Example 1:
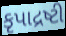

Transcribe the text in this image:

કૃપાદ્રષ્ટી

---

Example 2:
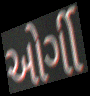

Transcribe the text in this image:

ઓર્ગી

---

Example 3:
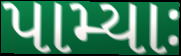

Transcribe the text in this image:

પામ્યાઃ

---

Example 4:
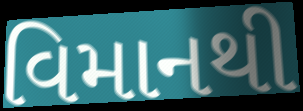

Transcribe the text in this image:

વિમાનથી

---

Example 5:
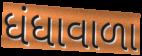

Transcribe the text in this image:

ધંધાવાળા